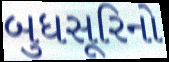
બુધસૂરિનો